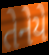
તેનેયે